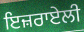
ਇਜ਼ਰਾਏਲੀ